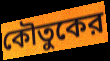
কৌতুকের